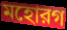
মহোরগ